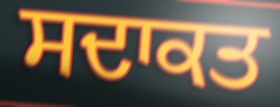
ਸਦਾਕਤ